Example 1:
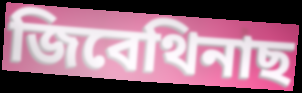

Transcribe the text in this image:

জিবেথিনাছ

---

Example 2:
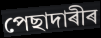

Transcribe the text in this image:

পেছাদাৰীৰ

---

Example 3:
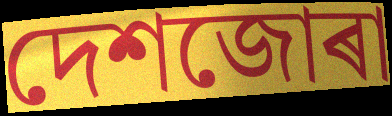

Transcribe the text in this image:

দেশজোৰা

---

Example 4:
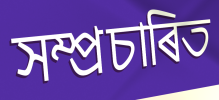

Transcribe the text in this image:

সম্প্ৰচাৰিত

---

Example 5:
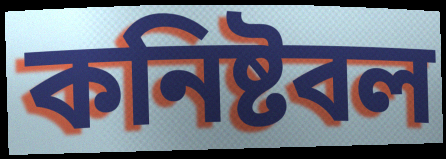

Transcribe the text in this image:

কনিষ্টবল